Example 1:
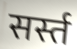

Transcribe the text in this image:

सर्स्त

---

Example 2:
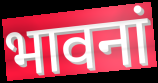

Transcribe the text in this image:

भावनां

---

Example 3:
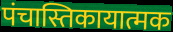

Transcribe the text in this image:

पंचास्तिकायात्मक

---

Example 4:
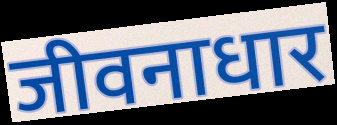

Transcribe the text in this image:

जीवनाधार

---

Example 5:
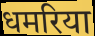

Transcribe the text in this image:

धमरिया